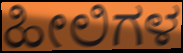
ಹೀಲಿಗಳ